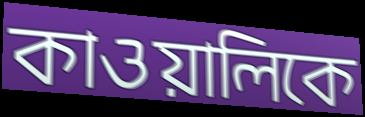
কাওয়ালিকে